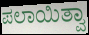
ಪಲಾಯಿತ್ವಾ